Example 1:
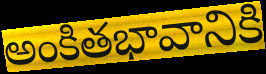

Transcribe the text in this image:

అంకితభావానికి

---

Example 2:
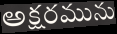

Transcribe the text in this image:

అక్షరమును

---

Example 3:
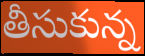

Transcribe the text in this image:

తీసుకున్న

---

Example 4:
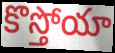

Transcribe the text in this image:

కొస్తోయా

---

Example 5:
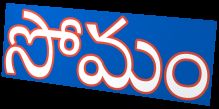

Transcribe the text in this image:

సోమం